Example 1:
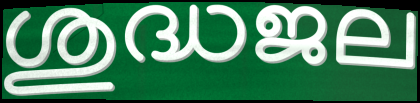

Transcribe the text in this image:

ശുദ്ധജല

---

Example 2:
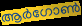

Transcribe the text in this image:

ആർഗോൺ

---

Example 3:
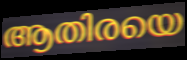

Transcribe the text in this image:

ആതിരയെ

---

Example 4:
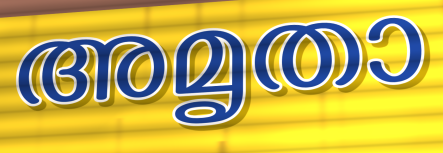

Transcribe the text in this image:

അമൃതാ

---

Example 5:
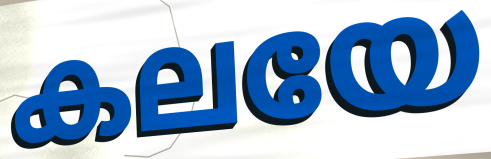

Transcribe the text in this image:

കലയേ